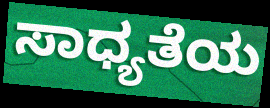
ಸಾಧ್ಯತೆಯ